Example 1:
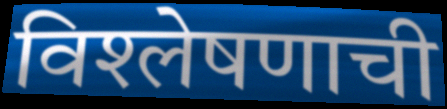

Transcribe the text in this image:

विश्लेषणाची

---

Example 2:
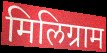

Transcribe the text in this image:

मिलिग्राम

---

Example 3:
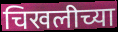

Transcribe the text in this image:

चिखलीच्या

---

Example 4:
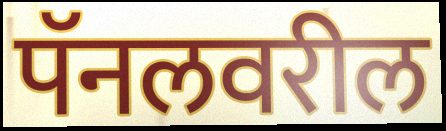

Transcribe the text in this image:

पॅनलवरील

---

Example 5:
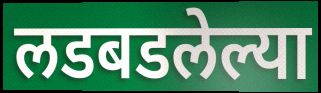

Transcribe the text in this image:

लडबडलेल्या